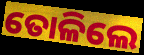
ତୋଳିଲେ